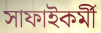
সাফাইকর্মী